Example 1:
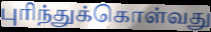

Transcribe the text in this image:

புரிந்துக்கொள்வது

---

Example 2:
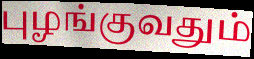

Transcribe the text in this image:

புழங்குவதும்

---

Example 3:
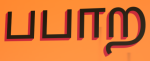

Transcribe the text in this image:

பபாற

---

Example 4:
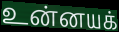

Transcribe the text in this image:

உன்னயக்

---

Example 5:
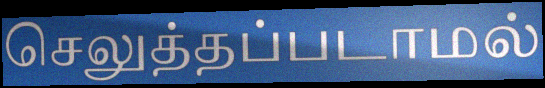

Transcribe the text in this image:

செலுத்தப்படாமல்